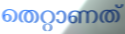
തെറ്റാണത്